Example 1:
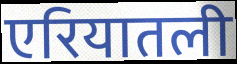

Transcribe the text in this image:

एरियातली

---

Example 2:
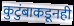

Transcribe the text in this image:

कुटुंबाकडूनही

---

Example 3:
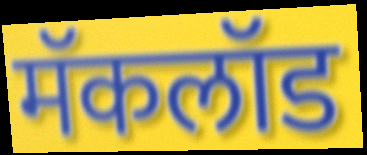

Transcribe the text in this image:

मॅकलॉड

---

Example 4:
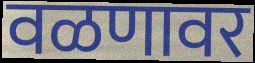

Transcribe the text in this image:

वळणावर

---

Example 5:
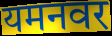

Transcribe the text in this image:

यमनवर